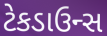
ટેકડાઉન્સ